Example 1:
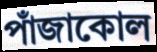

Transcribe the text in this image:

পাঁজাকোল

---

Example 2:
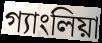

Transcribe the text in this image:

গ্যাংলিয়া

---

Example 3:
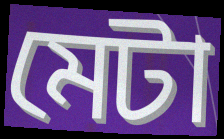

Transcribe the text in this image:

মেটা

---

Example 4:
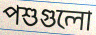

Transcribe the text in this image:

পশুগুলো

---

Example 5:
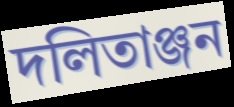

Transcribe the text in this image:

দলিতাঞ্জন